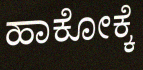
ಹಾಕೋಕ್ಕೆ